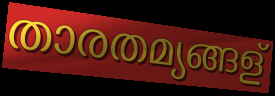
താരതമ്യങ്ങള്